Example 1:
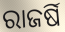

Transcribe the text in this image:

ରାଜର୍ଷି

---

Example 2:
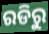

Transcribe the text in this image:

ରଡିରୁ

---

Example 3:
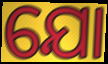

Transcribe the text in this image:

ଯୋ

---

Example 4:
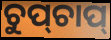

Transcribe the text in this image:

ଚୁପ୍‌ଚାପ୍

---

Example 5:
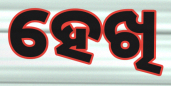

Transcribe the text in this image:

ହେଖି